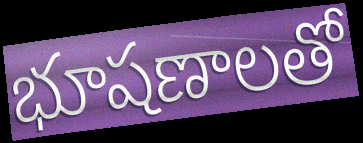
భూషణాలతో